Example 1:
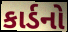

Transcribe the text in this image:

કાર્ડનો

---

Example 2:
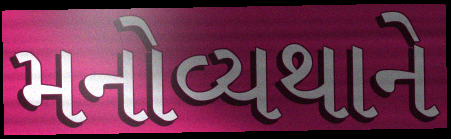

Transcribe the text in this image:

મનોવ્યથાને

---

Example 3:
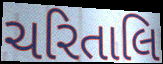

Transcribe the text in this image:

ચરિતાલિ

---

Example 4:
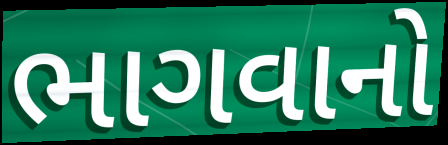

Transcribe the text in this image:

ભાગવાનો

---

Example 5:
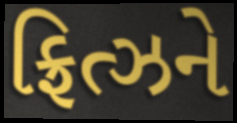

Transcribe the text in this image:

ફ્રિત્ઝને